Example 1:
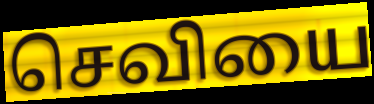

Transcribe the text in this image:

செவியை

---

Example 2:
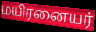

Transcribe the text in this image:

மயிரனையர்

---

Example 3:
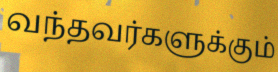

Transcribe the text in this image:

வந்தவர்களுக்கும்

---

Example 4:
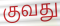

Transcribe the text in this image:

குவது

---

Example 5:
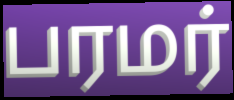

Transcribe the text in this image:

பரமர்